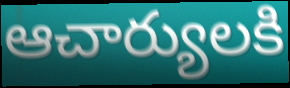
ఆచార్యులకి